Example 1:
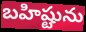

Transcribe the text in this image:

బహిష్టును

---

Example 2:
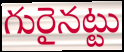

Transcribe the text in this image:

గురైనట్టు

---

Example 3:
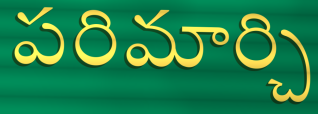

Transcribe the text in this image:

పరిమార్చి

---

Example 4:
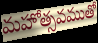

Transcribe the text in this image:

మహోత్సవముతో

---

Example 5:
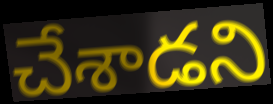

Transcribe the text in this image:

చేశాడని